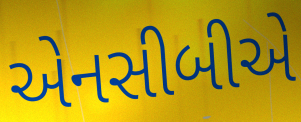
એનસીબીએ